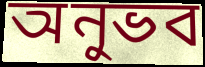
অনুভব